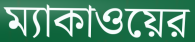
ম্যাকাওয়ের